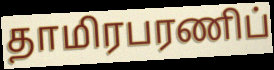
தாமிரபரணிப்